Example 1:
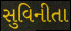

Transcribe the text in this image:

સુવિનીતા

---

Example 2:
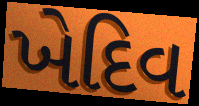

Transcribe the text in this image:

ખેદિવ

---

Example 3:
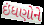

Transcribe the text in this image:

ઇંધણોને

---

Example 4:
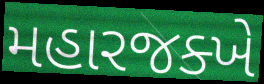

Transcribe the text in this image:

મહારજક્ખે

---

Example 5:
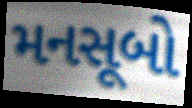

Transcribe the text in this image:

મનસૂબો